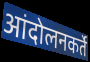
आंदोलनकर्ते